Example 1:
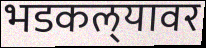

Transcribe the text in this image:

भडकल्यावर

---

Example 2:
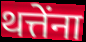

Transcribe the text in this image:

थत्तेंना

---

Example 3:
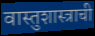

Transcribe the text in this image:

वास्तुशास्त्राची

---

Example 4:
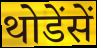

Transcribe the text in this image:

थोडेंसें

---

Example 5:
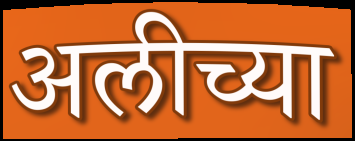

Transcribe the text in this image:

अलीच्या